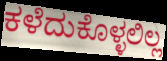
ಕಳೆದುಕೊಳ್ಳಲಿಲ್ಲ